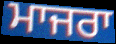
ਮਾਜਰਾ